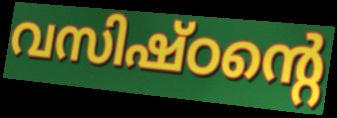
വസിഷ്ഠന്റെ